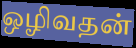
ஒழிவதன்